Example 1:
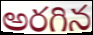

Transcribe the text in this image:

అరగిన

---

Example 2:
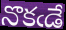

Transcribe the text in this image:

నొకఁడే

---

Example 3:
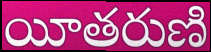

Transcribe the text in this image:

యీతరుణి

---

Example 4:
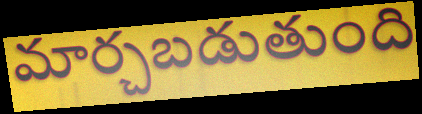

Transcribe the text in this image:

మార్చబడుతుంది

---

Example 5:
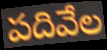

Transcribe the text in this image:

పదివేల